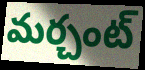
మర్చంట్